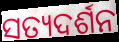
ସତ୍ୟଦର୍ଶନ